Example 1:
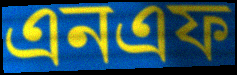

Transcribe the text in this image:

এনএফ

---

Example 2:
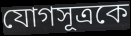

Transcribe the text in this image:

যোগসূত্রকে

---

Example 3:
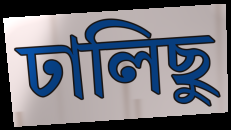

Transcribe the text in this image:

ঢালিছু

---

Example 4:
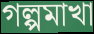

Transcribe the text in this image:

গল্পমাখা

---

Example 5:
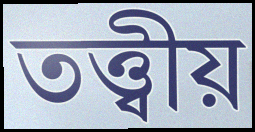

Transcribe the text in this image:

তত্ত্বীয়